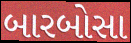
બારબોસા